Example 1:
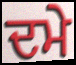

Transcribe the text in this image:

ਦਮੇ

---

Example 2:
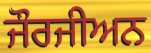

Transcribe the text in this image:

ਜੌਰਜੀਅਨ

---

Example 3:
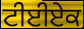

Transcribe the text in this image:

ਟੀਈਏਕ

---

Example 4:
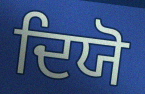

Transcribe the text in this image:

ਦਿਯੋ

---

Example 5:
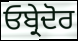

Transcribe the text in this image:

ਓਬ੍ਰੇਦੋਰ